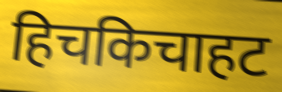
हिचकिचाहट